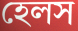
হেলস